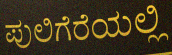
ಪುಲಿಗೆರೆಯಲ್ಲಿ